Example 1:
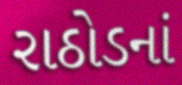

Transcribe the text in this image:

રાઠોડનાં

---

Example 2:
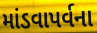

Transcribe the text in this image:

માંડવાપર્વના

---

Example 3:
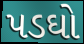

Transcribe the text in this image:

પડઘો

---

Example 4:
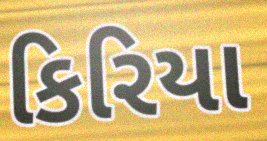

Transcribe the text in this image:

કિરિયા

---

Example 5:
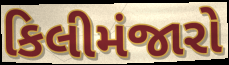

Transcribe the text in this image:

કિલીમંજારો